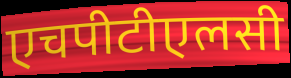
एचपीटीएलसी